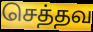
செத்தவ